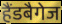
हैंडबैगेज